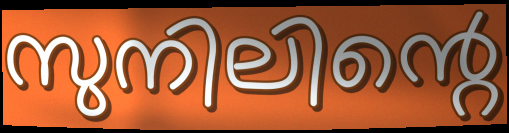
സുനിലിന്റെ